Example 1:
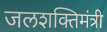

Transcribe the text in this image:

जलशक्तिमंत्री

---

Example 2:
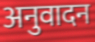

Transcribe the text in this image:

अनुवादन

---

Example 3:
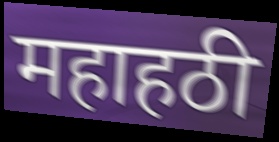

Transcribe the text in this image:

महाहठी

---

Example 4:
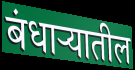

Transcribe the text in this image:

बंधाऱ्यातील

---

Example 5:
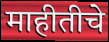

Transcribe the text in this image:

माहीतीचे